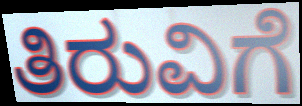
ತಿರುವಿಗೆ